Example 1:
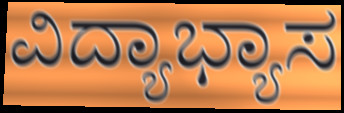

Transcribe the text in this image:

ವಿದ್ಯಾಭ್ಯಾಸ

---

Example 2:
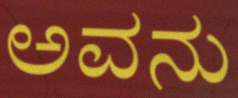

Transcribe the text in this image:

ಅವನು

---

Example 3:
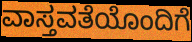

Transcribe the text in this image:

ವಾಸ್ತವತೆಯೊಂದಿಗೆ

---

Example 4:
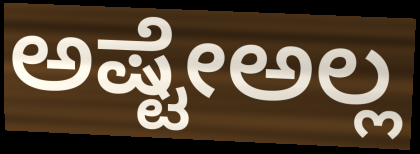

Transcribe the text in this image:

ಅಷ್ಟೇಅಲ್ಲ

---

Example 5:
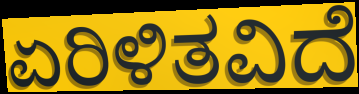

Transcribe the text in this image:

ಏರಿಳಿತವಿದೆ